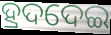
ହ୍ରଦଦେଇ